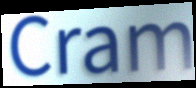
Cram